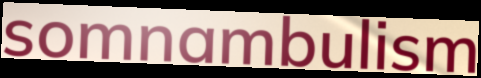
somnambulism